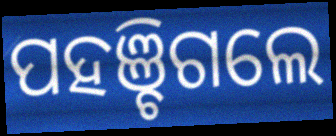
ପହଞ୍ଚିଗଲେ